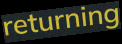
returning